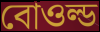
বোওল্ড